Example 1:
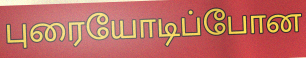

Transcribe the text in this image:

புரையோடிப்போன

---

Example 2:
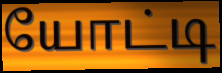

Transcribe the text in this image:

யோட்டி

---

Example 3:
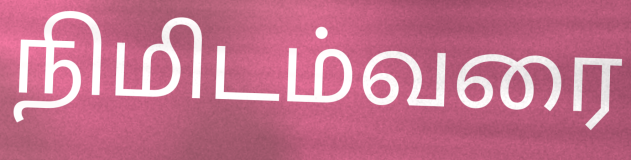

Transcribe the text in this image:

நிமிடம்வரை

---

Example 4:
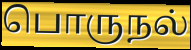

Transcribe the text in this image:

பொருநல்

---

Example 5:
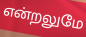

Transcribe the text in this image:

என்றலுமே